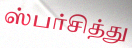
ஸ்பர்சித்து